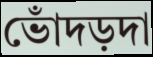
ভোঁদড়দা